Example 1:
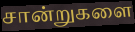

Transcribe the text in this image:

சான்றுகளை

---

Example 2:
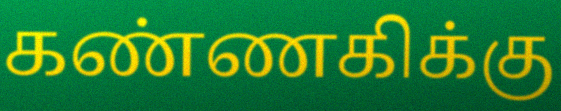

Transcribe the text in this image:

கண்ணகிக்கு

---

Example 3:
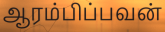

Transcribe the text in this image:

ஆரம்பிப்பவன்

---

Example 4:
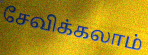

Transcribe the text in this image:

சேவிக்கலாம்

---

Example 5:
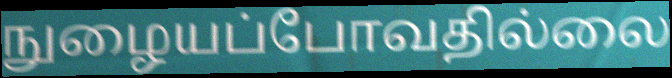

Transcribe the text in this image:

நுழையப்போவதில்லை